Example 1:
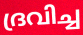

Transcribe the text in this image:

ദ്രവിച്ച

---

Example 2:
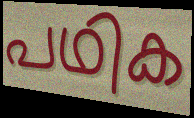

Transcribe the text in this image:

പഥിക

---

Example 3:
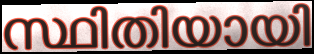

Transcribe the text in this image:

സ്ഥിതിയായി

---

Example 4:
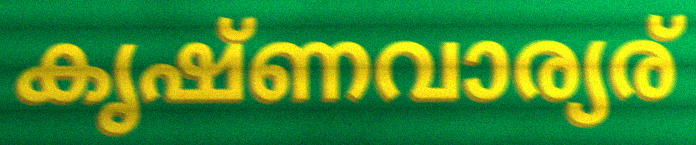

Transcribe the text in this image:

കൃഷ്ണവാര്യര്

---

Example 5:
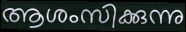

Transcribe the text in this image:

ആശംസിക്കുന്നു